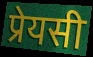
प्रेयसी